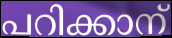
പറിക്കാന്